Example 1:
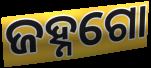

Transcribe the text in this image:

ଜହ୍ନଗୋ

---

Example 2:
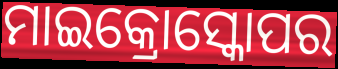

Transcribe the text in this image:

ମାଇକ୍ରୋସ୍କୋପର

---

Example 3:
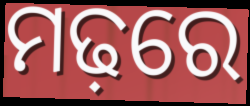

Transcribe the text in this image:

ମଢ଼ରେ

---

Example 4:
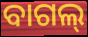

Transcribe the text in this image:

ବାଗଲ୍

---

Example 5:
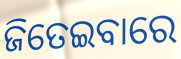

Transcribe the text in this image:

ଜିତେଇବାରେ